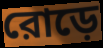
রোড়ে